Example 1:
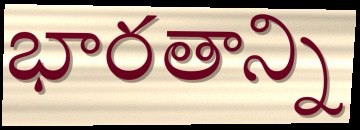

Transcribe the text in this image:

భారతాన్ని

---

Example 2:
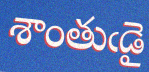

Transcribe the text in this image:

శాంతుఁడై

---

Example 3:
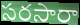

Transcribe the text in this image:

సరసారా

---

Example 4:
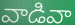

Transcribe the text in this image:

వాడివా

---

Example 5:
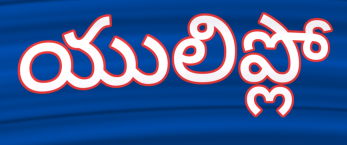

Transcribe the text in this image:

యులిప్లో